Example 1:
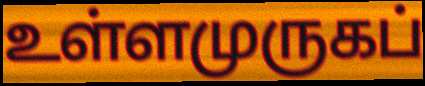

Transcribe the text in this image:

உள்ளமுருகப்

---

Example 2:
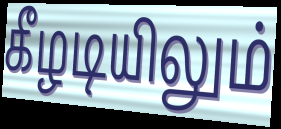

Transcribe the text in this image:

கீழடியிலும்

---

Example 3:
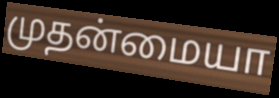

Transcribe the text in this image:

முதன்மையா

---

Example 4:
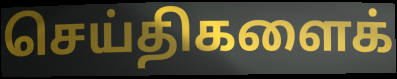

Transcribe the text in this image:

செய்திகளைக்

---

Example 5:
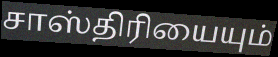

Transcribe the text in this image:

சாஸ்திரியையும்